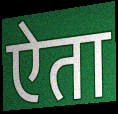
ऐता